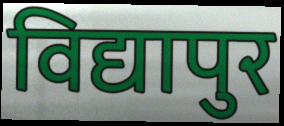
विद्यापुर